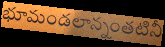
భూమండలాన్నంతటినీ